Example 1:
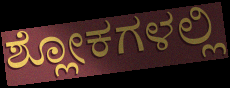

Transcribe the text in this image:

ಶ್ಲೋಕಗಳಲ್ಲಿ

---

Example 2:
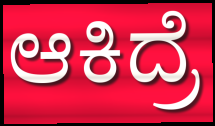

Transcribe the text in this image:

ಆಕಿದ್ರೆ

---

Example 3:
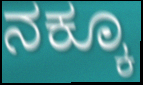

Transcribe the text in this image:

ನಕ್ಕೂ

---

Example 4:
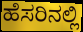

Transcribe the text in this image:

ಹೆಸರಿನಲ್ಲಿ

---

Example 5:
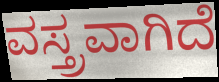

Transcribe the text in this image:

ವಸ್ತ್ರವಾಗಿದೆ